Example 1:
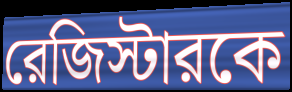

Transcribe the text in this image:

রেজিস্টারকে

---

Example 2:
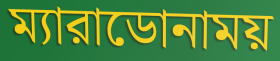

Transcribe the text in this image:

ম্যারাডোনাময়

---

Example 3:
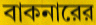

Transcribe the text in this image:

বাকনারের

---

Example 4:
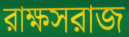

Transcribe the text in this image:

রাক্ষসরাজ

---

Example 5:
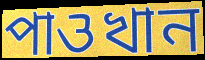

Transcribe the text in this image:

পাওখান